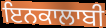
ਇਨਕਾਲਾਬੀ